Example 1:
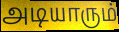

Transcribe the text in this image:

அடியாரும்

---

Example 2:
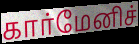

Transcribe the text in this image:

கார்மேனிச்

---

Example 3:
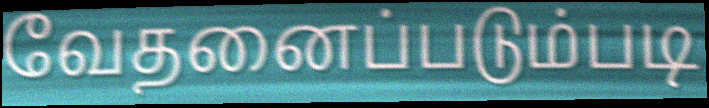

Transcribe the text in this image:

வேதனைப்படும்படி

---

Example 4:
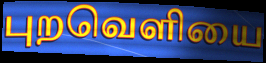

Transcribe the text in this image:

புறவெளியை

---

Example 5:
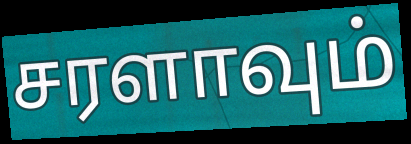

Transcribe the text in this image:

சரளாவும்